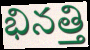
భినత్తి